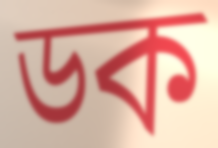
ডক